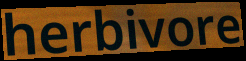
herbivore